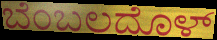
ಬೆಂಬಲದೊಳ್